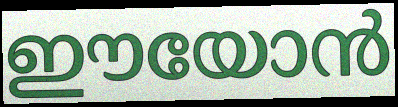
ഈയോൻ